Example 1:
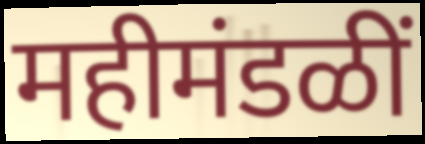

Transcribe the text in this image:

महीमंडळीं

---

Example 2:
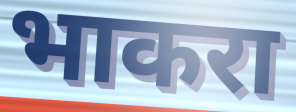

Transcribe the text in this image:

भाकरा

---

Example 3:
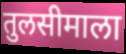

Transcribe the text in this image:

तुलसीमाला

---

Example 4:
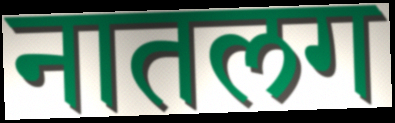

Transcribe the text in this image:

नातलग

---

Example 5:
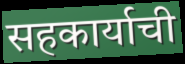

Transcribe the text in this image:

सहकार्याची